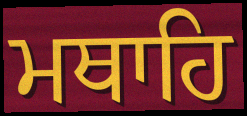
ਮਥਾਹਿ